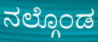
ನಲ್ಗೊಂಡ